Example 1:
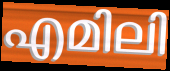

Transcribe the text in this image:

എമിലി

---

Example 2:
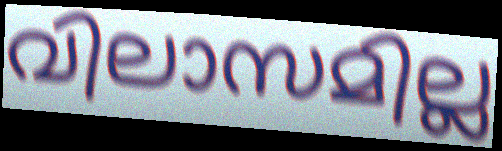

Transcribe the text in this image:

വിലാസമില്ല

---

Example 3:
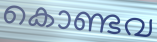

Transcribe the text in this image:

കൊണ്ടവ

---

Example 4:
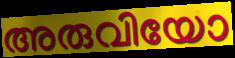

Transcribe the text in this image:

അരുവിയോ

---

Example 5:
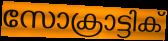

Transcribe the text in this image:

സോക്രാട്ടിക്